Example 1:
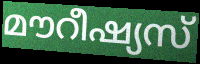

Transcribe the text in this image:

മൗറീഷ്യസ്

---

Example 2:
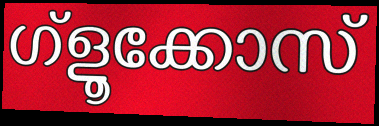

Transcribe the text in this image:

ഗ്ളൂക്കോസ്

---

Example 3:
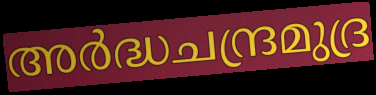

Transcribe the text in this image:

അർദ്ധചന്ദ്രമുദ്ര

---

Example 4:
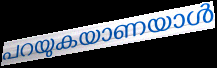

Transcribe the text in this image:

പറയുകയാണയാൾ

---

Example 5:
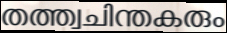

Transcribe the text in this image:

തത്ത്വചിന്തകരും